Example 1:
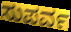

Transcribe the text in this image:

ಸುಪರ್ವ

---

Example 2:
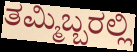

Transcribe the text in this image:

ತಮ್ಮಿಬ್ಬರಲ್ಲಿ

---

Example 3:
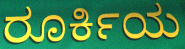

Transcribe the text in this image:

ರೂರ್ಕಿಯ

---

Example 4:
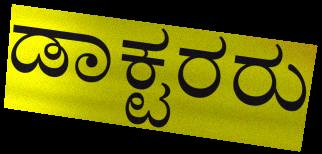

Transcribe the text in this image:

ಡಾಕ್ಟರರು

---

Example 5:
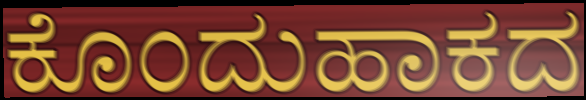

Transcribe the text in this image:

ಕೊಂದುಹಾಕದ